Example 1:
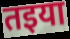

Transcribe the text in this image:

तइया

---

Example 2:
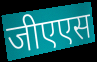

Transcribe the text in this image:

जीएएस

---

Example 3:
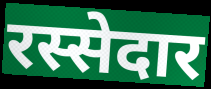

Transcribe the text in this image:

रस्सेदार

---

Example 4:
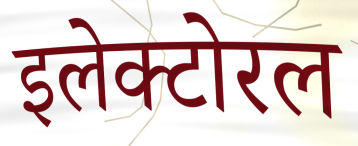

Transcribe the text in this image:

इलेक्टोरल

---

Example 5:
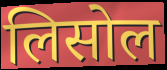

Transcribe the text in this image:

लिसोल